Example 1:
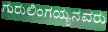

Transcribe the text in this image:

ಗುರುಲಿಂಗಯ್ಯನವರು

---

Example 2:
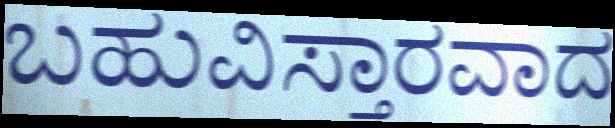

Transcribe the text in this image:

ಬಹುವಿಸ್ತಾರವಾದ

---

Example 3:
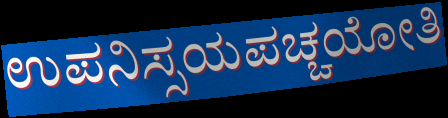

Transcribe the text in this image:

ಉಪನಿಸ್ಸಯಪಚ್ಚಯೋತಿ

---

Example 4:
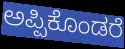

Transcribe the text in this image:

ಅಪ್ಪಿಕೊಂಡರೆ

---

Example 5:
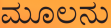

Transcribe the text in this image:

ಮೂಲನು